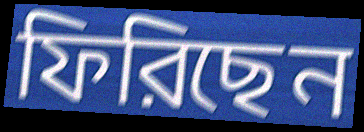
ফিরিছেন